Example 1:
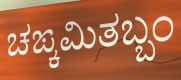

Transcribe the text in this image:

ಚಙ್ಕಮಿತಬ್ಬಂ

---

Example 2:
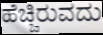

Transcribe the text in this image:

ಹೆಚ್ಚಿರುವದು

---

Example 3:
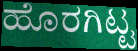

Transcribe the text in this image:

ಹೊರಗಿಟ್ಟ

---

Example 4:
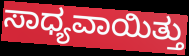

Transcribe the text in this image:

ಸಾಧ್ಯವಾಯಿತ್ತು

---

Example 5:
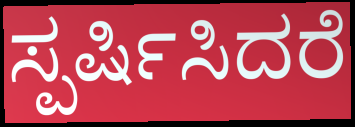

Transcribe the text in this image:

ಸ್ಪರ್ಷಿಸಿದರೆ